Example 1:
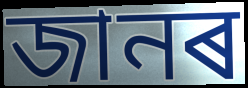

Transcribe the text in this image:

জানৰ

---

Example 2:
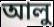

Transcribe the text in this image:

আলু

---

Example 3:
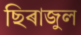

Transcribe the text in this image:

ছিৰাজুল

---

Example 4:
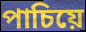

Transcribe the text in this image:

পাচিয়ে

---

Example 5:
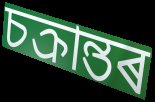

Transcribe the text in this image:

চক্ৰান্তৰ